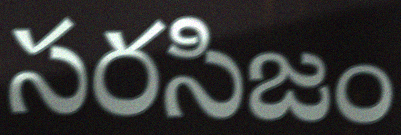
సరసిజం